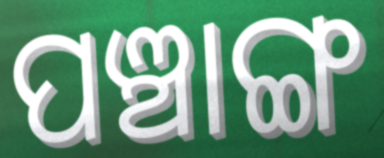
ପଞ୍ଚାଙ୍ଗ